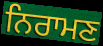
ਨਿਰਾਮਣ